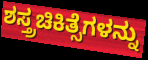
ಶಸ್ತ್ರಚಿಕಿತ್ಸೆಗಳನ್ನು